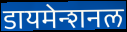
डायमेन्शनल